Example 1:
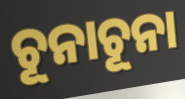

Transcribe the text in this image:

ଚୂନାଚୂନା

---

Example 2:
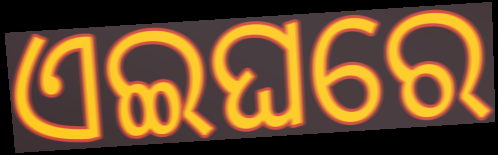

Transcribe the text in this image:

ଏଇଘରେ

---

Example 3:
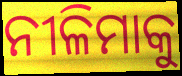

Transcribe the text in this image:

ନୀଳିମାକୁ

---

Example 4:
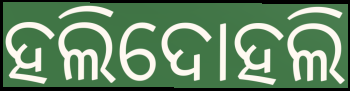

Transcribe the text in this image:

ହଲିଦୋହଲି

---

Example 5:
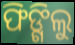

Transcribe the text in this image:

ଫିଙ୍ଗିଲୁ